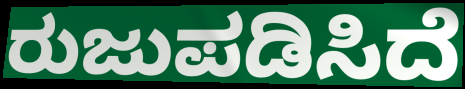
ರುಜುಪಡಿಸಿದೆ